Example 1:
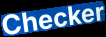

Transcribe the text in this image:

Checker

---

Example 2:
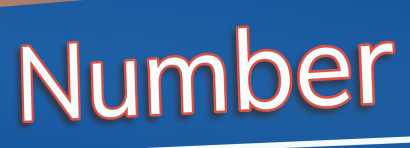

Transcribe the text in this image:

Number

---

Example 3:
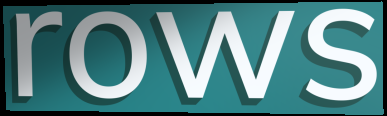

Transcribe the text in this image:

rows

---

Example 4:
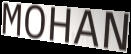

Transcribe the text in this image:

MOHAN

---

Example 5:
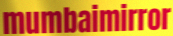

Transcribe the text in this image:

mumbaimirror